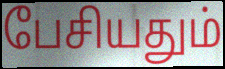
பேசியதும்